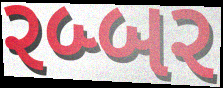
રબ્બર